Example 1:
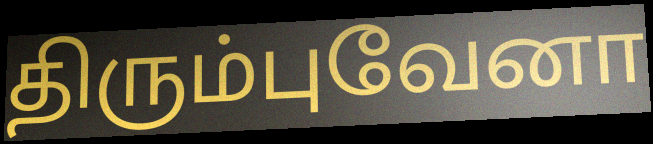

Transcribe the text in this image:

திரும்புவேனா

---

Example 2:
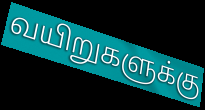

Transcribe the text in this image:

வயிறுகளுக்கு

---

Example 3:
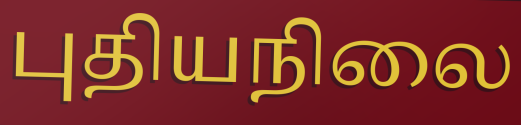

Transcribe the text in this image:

புதியநிலை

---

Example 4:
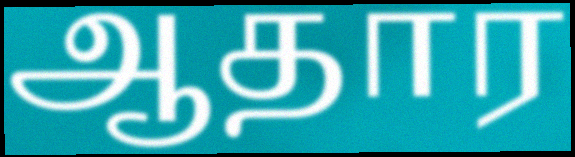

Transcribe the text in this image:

ஆதார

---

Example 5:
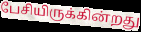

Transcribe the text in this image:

பேசியிருக்கின்றது